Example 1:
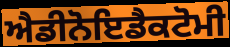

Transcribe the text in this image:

ਐਡੀਨੋਇਡੈਕਟੋਮੀ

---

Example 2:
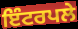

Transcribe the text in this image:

ਇੰਟਰਪਲੇ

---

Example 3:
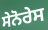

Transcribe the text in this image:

ਸੇਨੋਰੇਸ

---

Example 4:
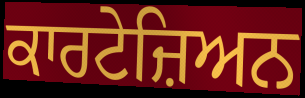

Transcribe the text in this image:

ਕਾਰਟੇਜ਼ਿਅਨ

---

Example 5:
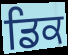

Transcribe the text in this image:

ਡਿਕ